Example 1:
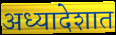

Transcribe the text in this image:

अध्यादेशात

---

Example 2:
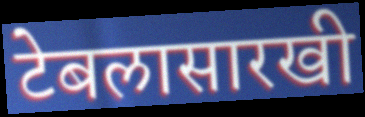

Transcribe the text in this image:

टेबलासारखी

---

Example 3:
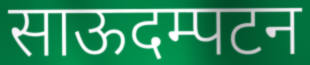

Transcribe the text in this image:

साऊदम्पटन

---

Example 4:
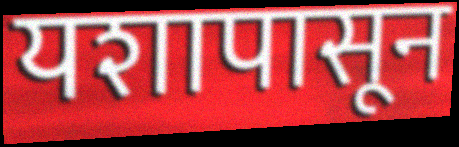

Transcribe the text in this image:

यशापासून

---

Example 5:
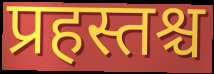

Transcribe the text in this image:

प्रहस्तश्च